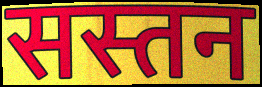
सस्तन